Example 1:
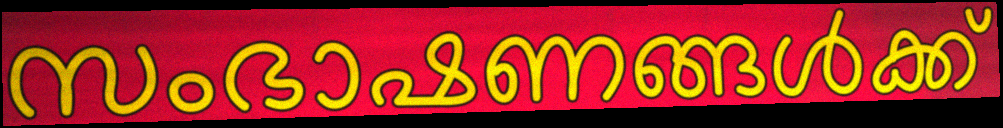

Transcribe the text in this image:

സംഭാഷണങ്ങൾക്ക്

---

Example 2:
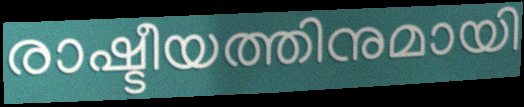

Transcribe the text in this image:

രാഷ്ടീയത്തിനുമായി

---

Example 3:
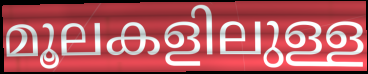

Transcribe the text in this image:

മൂലകളിലുള്ള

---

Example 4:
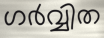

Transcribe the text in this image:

ഗർവ്വിത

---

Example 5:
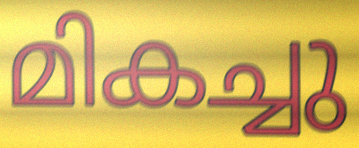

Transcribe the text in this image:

മികച്ചു